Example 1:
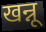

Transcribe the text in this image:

खन्नू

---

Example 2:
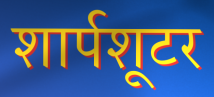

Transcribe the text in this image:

शार्पशूटर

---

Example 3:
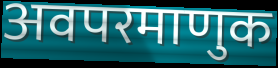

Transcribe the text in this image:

अवपरमाणुक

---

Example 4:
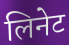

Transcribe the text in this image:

लिनेट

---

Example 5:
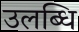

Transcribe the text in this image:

उलब्धि